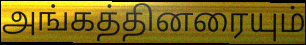
அங்கத்தினரையும்